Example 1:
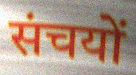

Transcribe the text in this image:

संचयों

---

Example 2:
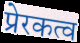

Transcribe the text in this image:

प्रेरकत्व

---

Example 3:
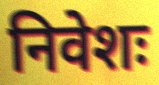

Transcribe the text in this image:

निवेशः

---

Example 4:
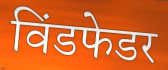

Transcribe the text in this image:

विंडफेडर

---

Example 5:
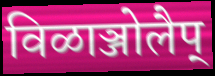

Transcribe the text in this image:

विळाञ्जोलैप्